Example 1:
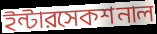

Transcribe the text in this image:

ইন্টারসেকশনাল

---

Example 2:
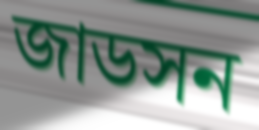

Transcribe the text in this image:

জাডসন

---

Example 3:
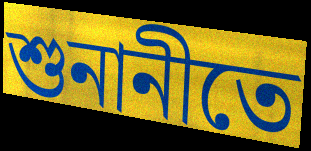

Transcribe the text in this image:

শুনানীতে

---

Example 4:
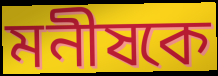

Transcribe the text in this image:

মনীষকে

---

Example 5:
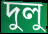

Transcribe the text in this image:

দুলু